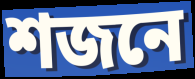
শজনে